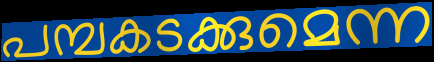
പമ്പകടക്കുമെന്ന